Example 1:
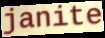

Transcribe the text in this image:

janite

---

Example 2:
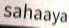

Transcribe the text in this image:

sahaaya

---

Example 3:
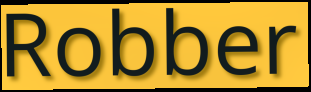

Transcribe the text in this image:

Robber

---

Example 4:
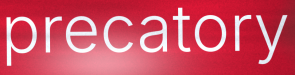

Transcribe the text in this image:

precatory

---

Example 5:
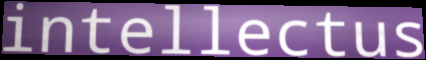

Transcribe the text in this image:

intellectus